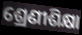
ଶ୍ରେଣୀଶିକ୍ଷା